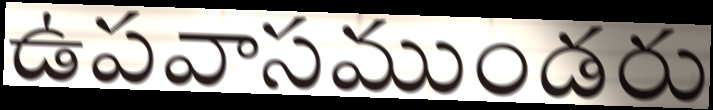
ఉపవాసముండరు